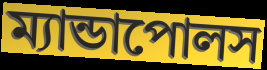
ম্যান্ডাপোলস